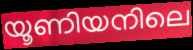
യൂണിയനിലെ